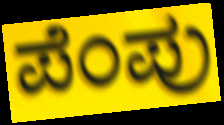
ಪೆಂಪು